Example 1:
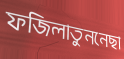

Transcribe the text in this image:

ফজিলাতুননেছা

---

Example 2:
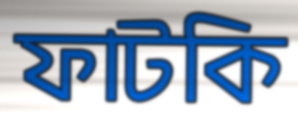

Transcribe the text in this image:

ফাটকি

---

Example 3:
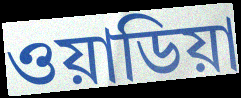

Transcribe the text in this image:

ওয়াডিয়া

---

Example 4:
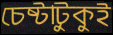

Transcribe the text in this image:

চেষ্টাটুকুই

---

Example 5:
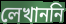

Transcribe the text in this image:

লেখাননি